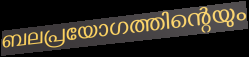
ബലപ്രയോഗത്തിന്റെയും